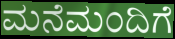
ಮನೆಮಂದಿಗೆ